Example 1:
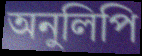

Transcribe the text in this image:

অনুলিপি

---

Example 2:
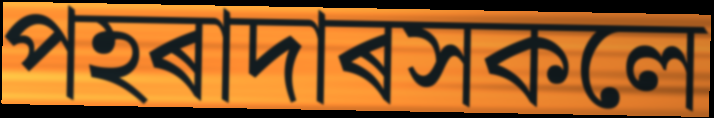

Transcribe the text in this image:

পহৰাদাৰসকলে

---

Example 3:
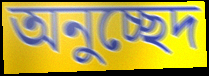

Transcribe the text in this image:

অনুচ্ছেদ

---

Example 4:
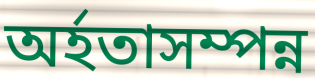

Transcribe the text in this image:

অৰ্হতাসম্পন্ন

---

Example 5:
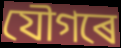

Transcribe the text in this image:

যৌগৰে